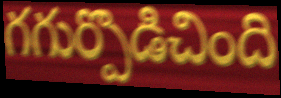
గగుర్పొడిచింది